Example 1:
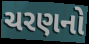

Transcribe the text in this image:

ચરણનો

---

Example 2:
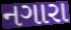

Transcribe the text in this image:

નગારા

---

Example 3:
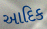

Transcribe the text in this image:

આદિક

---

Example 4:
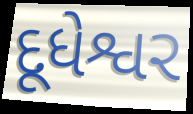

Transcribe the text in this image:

દૂધેશ્વર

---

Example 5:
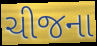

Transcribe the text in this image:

ચીજના